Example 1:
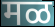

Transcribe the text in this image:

मळ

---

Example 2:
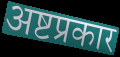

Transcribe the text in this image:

अष्टप्रकार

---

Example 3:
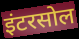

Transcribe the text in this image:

इंटरसोल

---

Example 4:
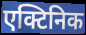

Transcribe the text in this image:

एक्टिनिक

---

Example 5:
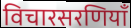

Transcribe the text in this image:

विचारसरणियाँ